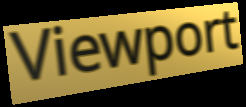
Viewport